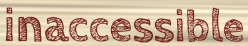
inaccessible